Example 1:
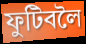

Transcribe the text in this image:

ফুটিবলৈ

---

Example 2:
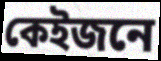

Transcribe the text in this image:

কেইজনে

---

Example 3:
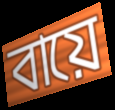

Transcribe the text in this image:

বায়ে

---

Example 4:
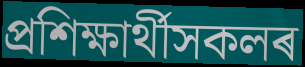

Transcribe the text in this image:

প্ৰশিক্ষাৰ্থীসকলৰ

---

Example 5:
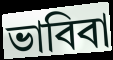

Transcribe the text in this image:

ভাবিবা